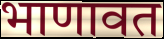
भाणावत